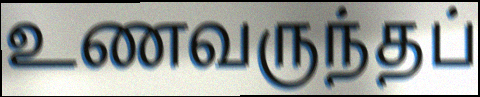
உணவருந்தப்